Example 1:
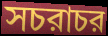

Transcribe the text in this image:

সচরাচর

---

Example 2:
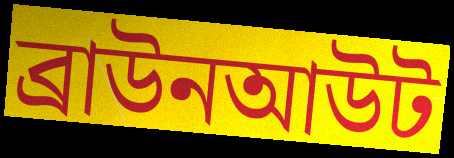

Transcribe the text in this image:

ব্রাউনআউট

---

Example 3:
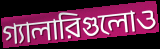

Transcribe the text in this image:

গ্যালারিগুলোও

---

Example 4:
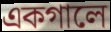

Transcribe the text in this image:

একগালে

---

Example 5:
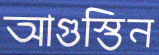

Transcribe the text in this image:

আগুস্তিন